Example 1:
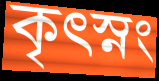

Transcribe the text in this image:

কৃৎস্নং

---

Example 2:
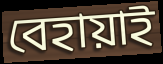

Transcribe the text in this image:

বেহায়াই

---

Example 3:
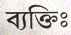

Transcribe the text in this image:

ব্যক্তিঃ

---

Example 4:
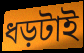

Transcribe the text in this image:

ধড়টাই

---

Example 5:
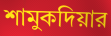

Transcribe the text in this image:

শামুকদিয়ার